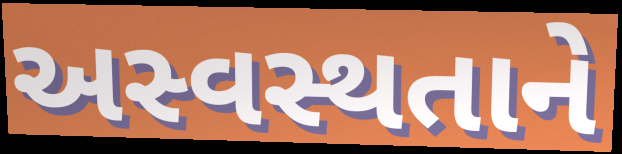
અસ્વસ્થતાને